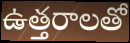
ఉత్తరాలతో